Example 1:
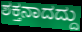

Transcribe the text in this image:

ಶಕ್ತನಾದದ್ದು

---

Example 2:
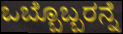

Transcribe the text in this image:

ಒಬ್ಬೊಬ್ಬರನ್ನೆ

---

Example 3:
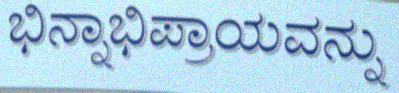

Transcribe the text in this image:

ಭಿನ್ನಾಭಿಪ್ರಾಯವನ್ನು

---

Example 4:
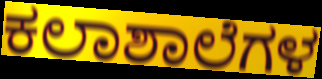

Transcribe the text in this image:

ಕಲಾಶಾಲೆಗಳ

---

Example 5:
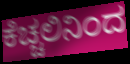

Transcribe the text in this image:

ಕೆಚ್ಚಲಿನಿಂದ